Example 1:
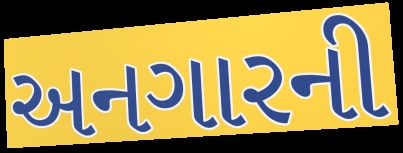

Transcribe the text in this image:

અનગારની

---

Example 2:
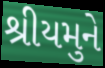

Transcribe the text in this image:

શ્રીયમુને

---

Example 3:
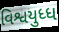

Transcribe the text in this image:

વિશ્વયુધ્ધ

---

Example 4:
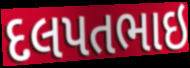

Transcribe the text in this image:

દલપતભાઇ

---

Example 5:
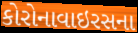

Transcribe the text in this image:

કોરોનાવાઇરસના